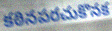
కఠినపరచుకొనక